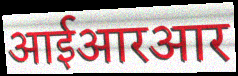
आईआरआर